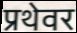
प्रथेवर